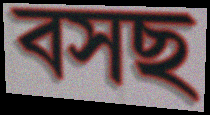
বসছ